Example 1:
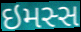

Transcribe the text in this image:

ઇમસ્સ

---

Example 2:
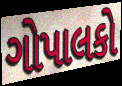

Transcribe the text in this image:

ગોપાલકો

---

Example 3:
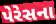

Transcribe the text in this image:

પેરેસના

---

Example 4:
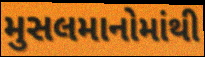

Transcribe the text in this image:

મુસલમાનોમાંથી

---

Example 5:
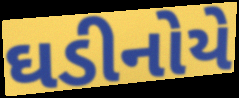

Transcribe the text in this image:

ઘડીનોયે